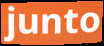
junto